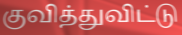
குவித்துவிட்டு